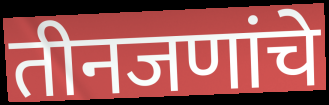
तीनजणांचे